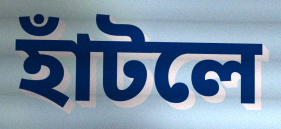
হাঁটলে